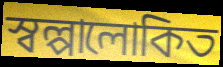
স্বল্পালোকিত